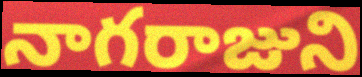
నాగరాజుని